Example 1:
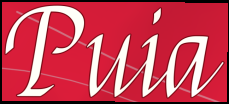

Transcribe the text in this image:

Puia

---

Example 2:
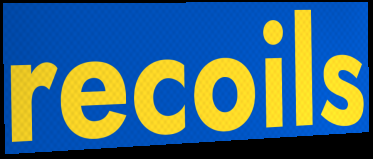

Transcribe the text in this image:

recoils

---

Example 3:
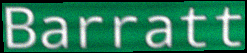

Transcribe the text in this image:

Barratt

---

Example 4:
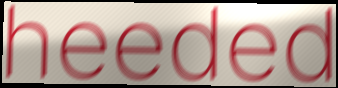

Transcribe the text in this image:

heeded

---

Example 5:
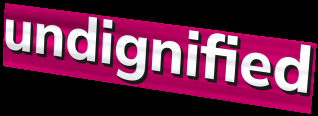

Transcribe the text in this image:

undignified